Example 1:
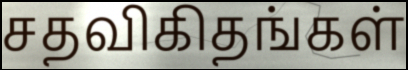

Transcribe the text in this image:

சதவிகிதங்கள்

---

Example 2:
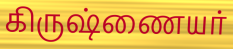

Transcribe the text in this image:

கிருஷ்ணையர்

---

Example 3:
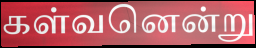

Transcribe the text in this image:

கள்வனென்று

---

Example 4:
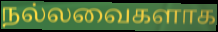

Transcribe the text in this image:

நல்லவைகளாக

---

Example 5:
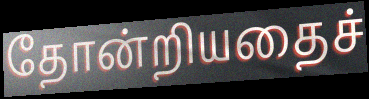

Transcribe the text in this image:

தோன்றியதைச்